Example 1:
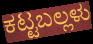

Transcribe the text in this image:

ಕಟ್ಟಬಲ್ಲಳು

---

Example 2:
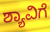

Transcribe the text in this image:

ಶ್ಯಾವಿಗೆ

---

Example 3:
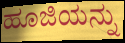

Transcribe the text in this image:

ಹೂಜಿಯನ್ನು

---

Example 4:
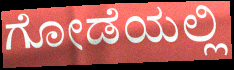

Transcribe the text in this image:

ಗೋಡೆಯಲ್ಲಿ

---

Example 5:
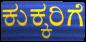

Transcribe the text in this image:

ಕುಕ್ಕರಿಗೆ